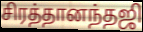
சிரத்தானந்தஜி